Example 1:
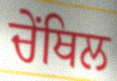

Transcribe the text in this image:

ਚੇਂਥਿਲ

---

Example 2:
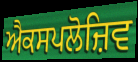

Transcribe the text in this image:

ਐਕਸਪਲੋਜ਼ਿਵ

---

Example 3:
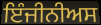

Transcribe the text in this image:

ਇੰਜੀਨੀਅਸ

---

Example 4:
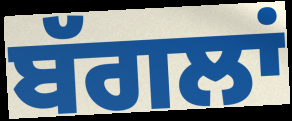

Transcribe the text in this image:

ਬੱਗਲਾਂ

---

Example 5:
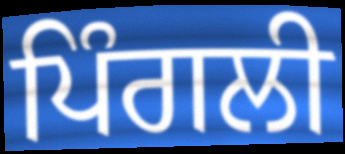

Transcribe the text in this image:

ਪਿੰਗਲੀ